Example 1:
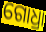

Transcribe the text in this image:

ଗୋଧ୍ରା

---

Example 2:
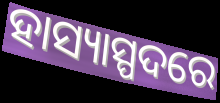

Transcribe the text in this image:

ହାସ୍ୟାସ୍ପଦରେ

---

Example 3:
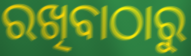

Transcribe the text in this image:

ରଖିବାଠାରୁ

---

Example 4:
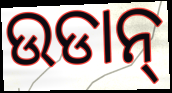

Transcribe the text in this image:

ଉଡାନ୍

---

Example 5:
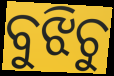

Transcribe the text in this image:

ବୁଝିଚୁ